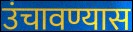
उंचावण्यास